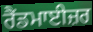
ਰੈਂਡਮਾਈਜ਼ਰ